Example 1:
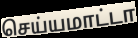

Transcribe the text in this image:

செய்யமாட்டா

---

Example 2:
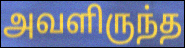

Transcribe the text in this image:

அவளிருந்த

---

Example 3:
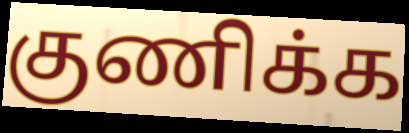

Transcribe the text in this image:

குணிக்க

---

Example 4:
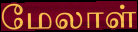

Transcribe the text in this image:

மேலாள்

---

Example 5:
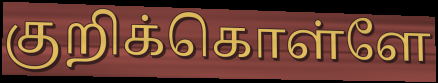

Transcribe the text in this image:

குறிக்கொள்ளே